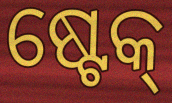
ଷ୍ଟେକ୍